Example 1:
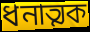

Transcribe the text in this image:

ধনাত্মক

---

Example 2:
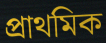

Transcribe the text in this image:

প্ৰাথমিক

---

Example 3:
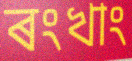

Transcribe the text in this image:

ৰংখাং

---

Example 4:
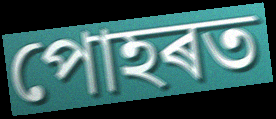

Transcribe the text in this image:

পোহৰত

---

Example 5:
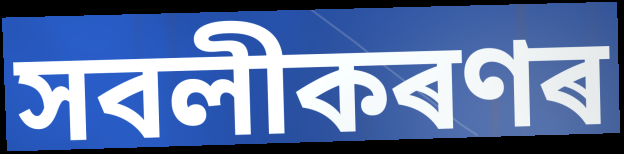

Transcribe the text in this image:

সবলীকৰণৰ